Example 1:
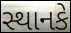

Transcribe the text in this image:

સ્થાનકે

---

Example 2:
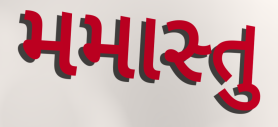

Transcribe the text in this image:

મમાસ્તુ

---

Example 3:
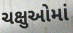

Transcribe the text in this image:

ચક્ષુઓમાં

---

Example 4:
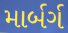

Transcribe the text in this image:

માર્બર્ગ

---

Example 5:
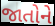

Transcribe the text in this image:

જાતોને